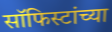
सॉफिस्टांच्या